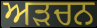
ਅੜਚਨ